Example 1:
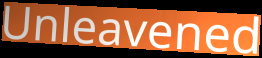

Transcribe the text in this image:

Unleavened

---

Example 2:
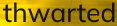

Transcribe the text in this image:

thwarted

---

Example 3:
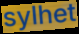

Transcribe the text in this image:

sylhet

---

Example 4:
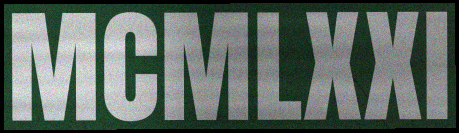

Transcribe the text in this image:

MCMLXXI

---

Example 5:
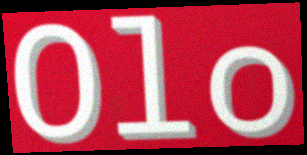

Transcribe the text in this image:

Olo